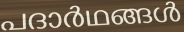
പദാർഥങ്ങൾ